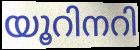
യൂറിനറി